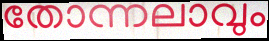
തോന്നലാവും